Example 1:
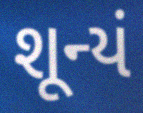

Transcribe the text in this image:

શૂન્યં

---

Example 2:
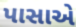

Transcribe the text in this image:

પાસાએ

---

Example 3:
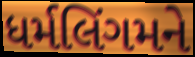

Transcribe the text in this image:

ધર્મલિંગમને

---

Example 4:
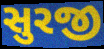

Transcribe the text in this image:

સુરજી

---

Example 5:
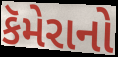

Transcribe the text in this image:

કૅમેરાનો